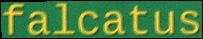
falcatus